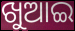
ଖୁଆଇ